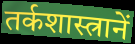
तर्कशास्त्रानें